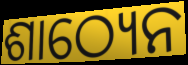
ଶାଠ୍ୟେନ